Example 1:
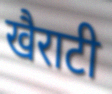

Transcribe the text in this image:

खैराटी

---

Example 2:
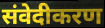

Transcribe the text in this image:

संवेदीकरण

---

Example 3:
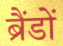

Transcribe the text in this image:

ब्रैंडों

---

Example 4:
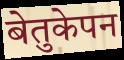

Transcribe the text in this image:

बेतुकेपन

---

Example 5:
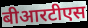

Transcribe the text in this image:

बीआरटीएस